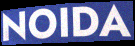
NOIDA